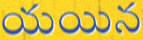
యయిన